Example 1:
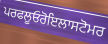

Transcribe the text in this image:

ਪਰਫਲੂਓਰੋਇਲਾਸਟੋਮਰ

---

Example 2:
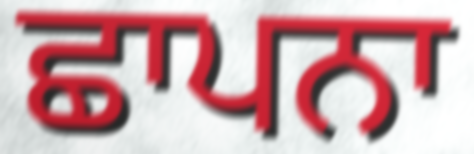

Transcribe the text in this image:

ਛਾਪਨਾ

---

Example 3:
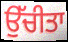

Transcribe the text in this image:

ਉੱਚੀਤਾ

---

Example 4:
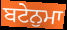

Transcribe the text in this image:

ਬਟੇਨੁਮਾ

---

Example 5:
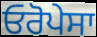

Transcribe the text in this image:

ਓਰੋਪੇਸਾ